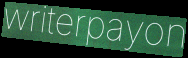
writerpayon